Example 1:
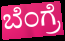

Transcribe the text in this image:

ಬೆಂಗ್ರೆ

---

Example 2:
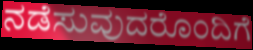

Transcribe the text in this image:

ನಡೆಸುವುದರೊಂದಿಗೆ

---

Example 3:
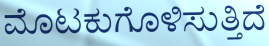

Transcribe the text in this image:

ಮೊಟಕುಗೊಳಿಸುತ್ತಿದೆ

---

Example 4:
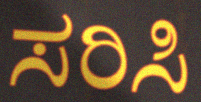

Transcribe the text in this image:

ಸರಿಸಿ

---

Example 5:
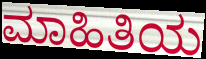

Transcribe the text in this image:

ಮಾಹಿತಿಯ